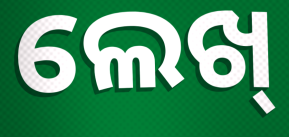
ଲେଖ୍